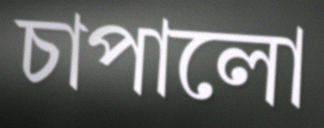
চাপালো